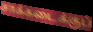
சாக்கடைக்குப்